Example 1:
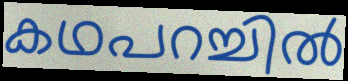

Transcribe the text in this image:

കഥപറച്ചിൽ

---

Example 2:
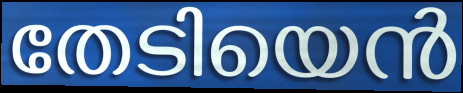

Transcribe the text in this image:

തേടിയെൻ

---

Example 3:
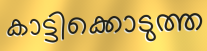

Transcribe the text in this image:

കാട്ടിക്കൊടുത്ത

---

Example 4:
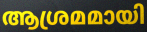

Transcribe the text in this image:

ആശ്രമമായി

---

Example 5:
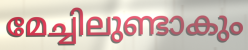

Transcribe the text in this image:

മേച്ചിലുണ്ടാകും